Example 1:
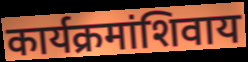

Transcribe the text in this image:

कार्यक्रमांशिवाय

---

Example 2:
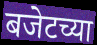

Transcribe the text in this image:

बजेटच्या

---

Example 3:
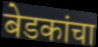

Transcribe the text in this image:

बेडकांचा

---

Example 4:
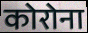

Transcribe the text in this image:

कोरोना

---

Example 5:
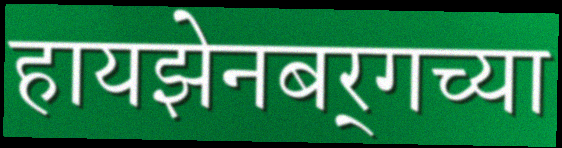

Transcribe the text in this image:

हायझेनबर्गच्या